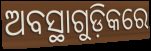
ଅବସ୍ଥାଗୁଡ଼ିକରେ